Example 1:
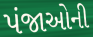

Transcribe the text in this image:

પંજાઓની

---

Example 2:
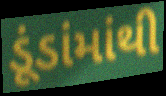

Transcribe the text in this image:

ડૂંડાંમાંથી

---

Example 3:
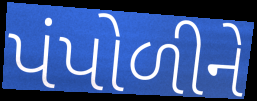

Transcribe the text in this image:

પંપોળીને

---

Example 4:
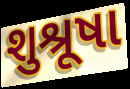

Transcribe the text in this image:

શુશ્રૂષા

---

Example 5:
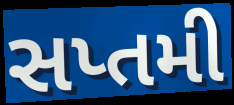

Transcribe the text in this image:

સપ્તમી